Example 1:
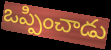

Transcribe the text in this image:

ఒప్పించాడు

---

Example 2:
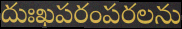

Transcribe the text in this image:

దుఃఖపరంపరలను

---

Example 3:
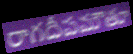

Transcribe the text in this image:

రాగదీపమౌతూ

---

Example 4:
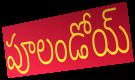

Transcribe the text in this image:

పూలండోయ్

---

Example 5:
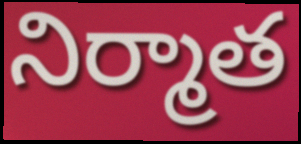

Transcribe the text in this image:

నిర్మాత